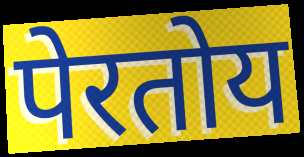
पेरतोय